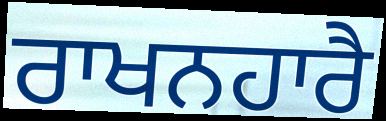
ਰਾਖਨਹਾਰੈ